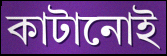
কাটানোই